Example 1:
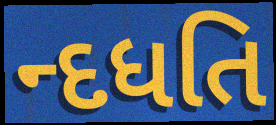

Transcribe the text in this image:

ન્દધતિ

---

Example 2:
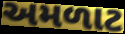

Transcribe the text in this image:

અમળાટ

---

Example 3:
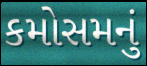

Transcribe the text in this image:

કમોસમનું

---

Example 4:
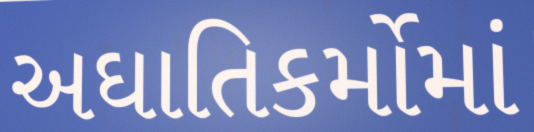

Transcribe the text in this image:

અઘાતિકર્મોમાં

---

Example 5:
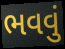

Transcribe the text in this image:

ભવવું